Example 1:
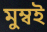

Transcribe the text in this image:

মুম্বই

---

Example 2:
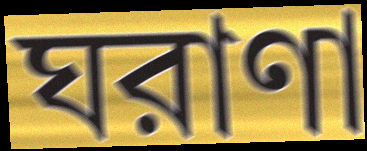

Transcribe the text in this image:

ঘরাণা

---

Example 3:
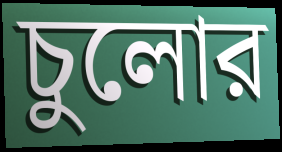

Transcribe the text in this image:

চুলোর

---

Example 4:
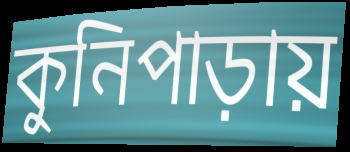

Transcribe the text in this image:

কুনিপাড়ায়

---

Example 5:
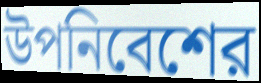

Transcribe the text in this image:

উপনিবেশের